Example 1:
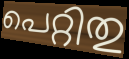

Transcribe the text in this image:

പെറ്റിതു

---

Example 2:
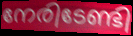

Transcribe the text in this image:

നേരിടേണ്ടി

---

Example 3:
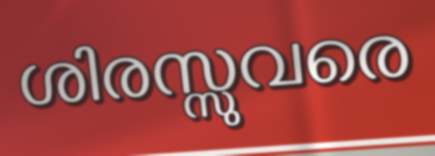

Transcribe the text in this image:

ശിരസ്സുവരെ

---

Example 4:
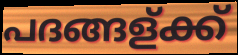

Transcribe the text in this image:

പദങ്ങള്ക്ക്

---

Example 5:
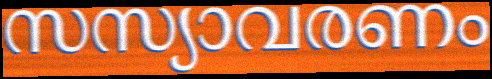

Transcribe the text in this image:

സസ്യാവരണം